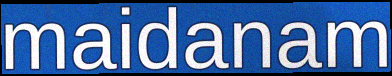
maidanam